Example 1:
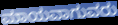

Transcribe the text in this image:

ಮಾಯವಾಗುವರು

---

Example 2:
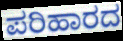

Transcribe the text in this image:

ಪರಿಹಾರದ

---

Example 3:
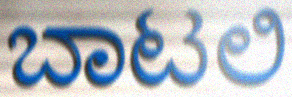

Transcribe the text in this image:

ಬಾಟಲಿ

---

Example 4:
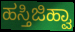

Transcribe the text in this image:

ಹಸ್ತಿಜಿಹ್ವಾ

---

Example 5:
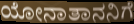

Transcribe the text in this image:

ಯೋನಾತಾನನಿಗೆ